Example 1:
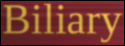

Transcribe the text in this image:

Biliary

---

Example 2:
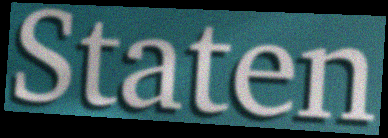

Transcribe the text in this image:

Staten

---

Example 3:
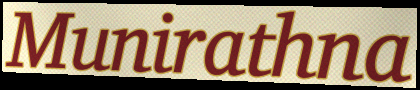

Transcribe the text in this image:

Munirathna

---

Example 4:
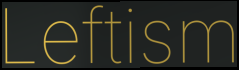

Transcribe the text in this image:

Leftism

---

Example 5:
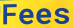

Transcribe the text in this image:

Fees